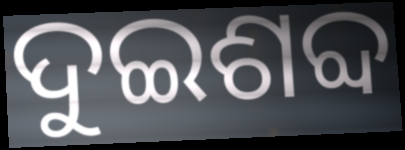
ଦୁଇଶବ୍ଦ